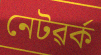
নেটৱৰ্ক